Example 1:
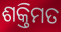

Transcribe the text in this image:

ଶକ୍ତିମତ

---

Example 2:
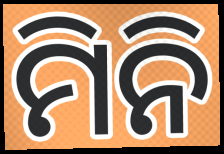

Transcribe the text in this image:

ମିନି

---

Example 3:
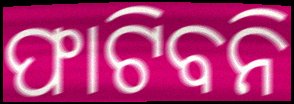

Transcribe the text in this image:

ଫାଟିବନି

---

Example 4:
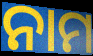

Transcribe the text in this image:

ନାମ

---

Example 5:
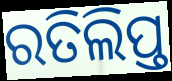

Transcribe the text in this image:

ରତିଲିପ୍ତ